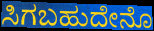
ಸಿಗಬಹುದೇನೊ